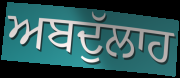
ਅਬਦੁੱਲਾਹ